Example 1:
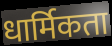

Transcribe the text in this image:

धार्मिकता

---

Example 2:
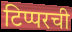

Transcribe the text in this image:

टिप्परची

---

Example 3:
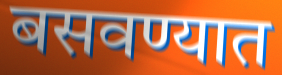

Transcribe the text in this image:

बसवण्यात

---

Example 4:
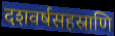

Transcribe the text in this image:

दशवर्षसहस्राणि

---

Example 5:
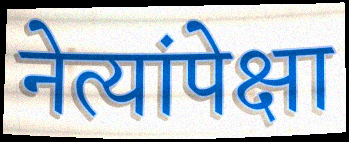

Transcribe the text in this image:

नेत्यांपेक्षा